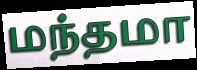
மந்தமா